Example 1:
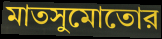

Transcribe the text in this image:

মাতসুমোতোর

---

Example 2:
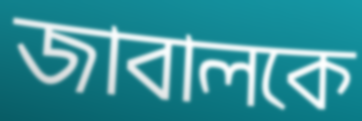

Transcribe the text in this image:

জাবালকে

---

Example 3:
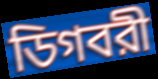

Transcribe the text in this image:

ডিগবরী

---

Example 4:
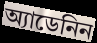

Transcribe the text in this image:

অ্যাডেনিন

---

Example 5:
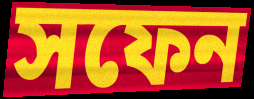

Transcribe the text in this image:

সফেন